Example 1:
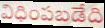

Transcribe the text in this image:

విధింపబడేది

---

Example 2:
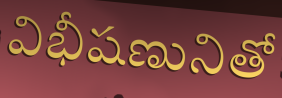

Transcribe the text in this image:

విభీషణునితో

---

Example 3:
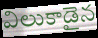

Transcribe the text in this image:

విలుకాడైన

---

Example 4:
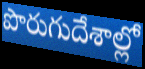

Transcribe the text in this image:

పొరుగుదేశాల్లో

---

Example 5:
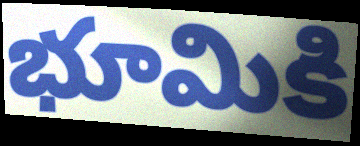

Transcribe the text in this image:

భూమికి